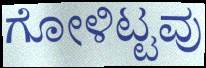
ಗೋಳಿಟ್ಟವು